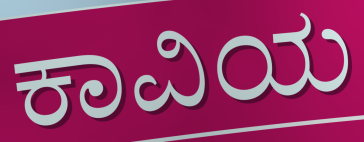
ಕಾವಿಯ